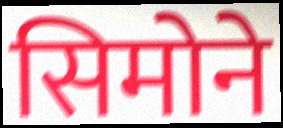
सिमोने